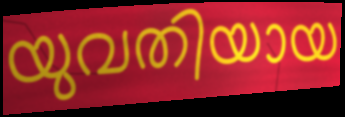
യുവതിയായ